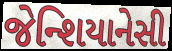
જેન્શિયાનેસી